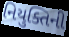
નિયુક્તિની